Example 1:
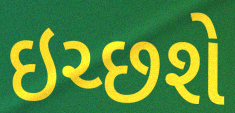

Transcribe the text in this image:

ઇચ્છશે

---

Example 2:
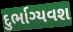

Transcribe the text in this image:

દુર્ભાગ્યવશ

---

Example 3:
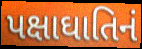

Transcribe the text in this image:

પક્ષાઘાતિનં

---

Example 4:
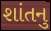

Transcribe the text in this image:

શાંતનુ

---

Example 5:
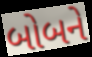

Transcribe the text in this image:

બોબને